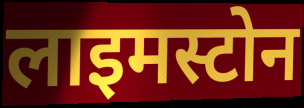
लाइमस्टोन